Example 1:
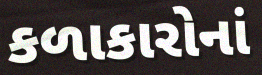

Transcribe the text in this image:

કળાકારોનાં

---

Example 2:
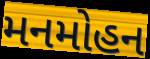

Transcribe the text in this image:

મનમોહન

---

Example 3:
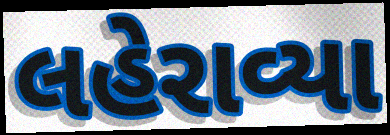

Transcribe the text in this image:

લહેરાવ્યા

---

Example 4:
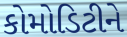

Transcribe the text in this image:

કોમોડિટીને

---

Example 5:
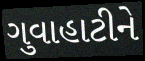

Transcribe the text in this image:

ગુવાહાટીને